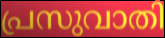
പ്രസുവാതി